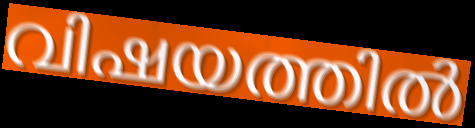
വിഷയത്തിൽ